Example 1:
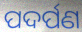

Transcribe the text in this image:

ପଦର୍ପଣ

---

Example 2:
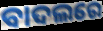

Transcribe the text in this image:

ବାଦଲରେ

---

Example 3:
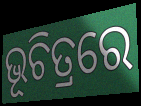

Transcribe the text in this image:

ଭୂଚିତ୍ରରେ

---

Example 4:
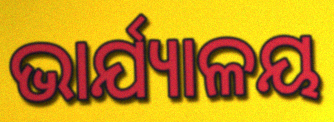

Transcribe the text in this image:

ଭାର୍ଯ୍ୟାଳୟ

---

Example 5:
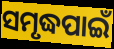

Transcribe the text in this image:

ସମୃଦ୍ଧପାଇଁ